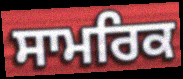
ਸਾਮਰਿਕ